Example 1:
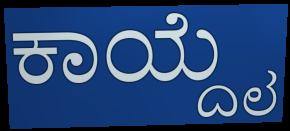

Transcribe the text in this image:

ಕಾಯ್ದೈ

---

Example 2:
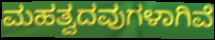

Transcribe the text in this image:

ಮಹತ್ವದವುಗಳಾಗಿವೆ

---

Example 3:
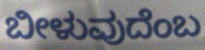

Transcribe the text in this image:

ಬೀಳುವುದೆಂಬ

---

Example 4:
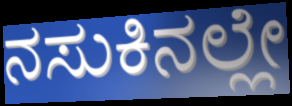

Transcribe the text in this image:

ನಸುಕಿನಲ್ಲೇ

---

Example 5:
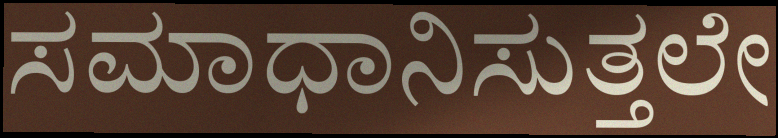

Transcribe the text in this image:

ಸಮಾಧಾನಿಸುತ್ತಲೇ